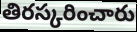
తిరస్కరించారు